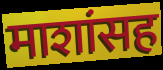
माशांसह